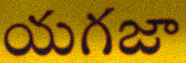
యగజా